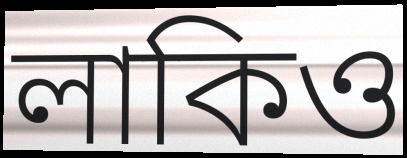
লাকিও